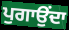
ਪੁਗਾਉਂਦਾ